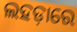
ଲହଡ଼ାରେ